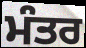
ਮੰਤਰ